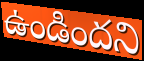
ఉండిందని